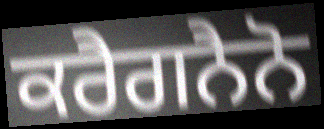
ਕਰੈਗਨੈਨੋ